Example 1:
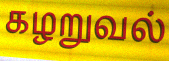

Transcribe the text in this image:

கழறுவல்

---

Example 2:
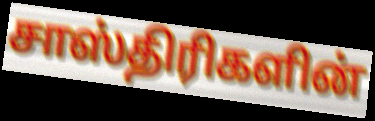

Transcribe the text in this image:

சாஸ்திரிகளின்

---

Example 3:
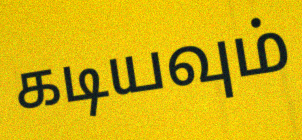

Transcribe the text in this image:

கடியவும்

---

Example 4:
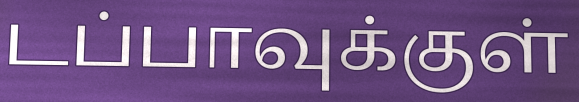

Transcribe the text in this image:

டப்பாவுக்குள்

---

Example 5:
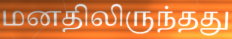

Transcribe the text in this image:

மனதிலிருந்தது